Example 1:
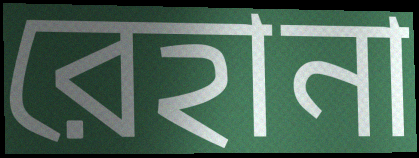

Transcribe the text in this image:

রেহানা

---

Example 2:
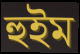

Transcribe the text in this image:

হুইম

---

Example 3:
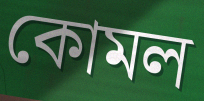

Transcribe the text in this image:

কোমল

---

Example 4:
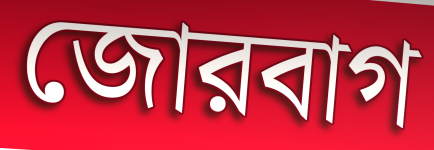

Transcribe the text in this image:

জোরবাগ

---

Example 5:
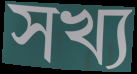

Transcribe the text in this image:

সখ্য